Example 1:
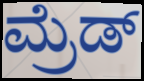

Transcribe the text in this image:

ಮ್ರೆಡ್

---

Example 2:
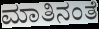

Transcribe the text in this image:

ಮಾತಿನಂತೆ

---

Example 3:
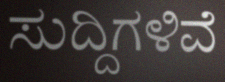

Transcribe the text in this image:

ಸುದ್ದಿಗಳಿವೆ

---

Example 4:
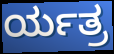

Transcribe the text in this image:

ರ್ಯತ್ರ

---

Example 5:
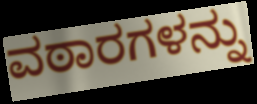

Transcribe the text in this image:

ವಠಾರಗಳನ್ನು